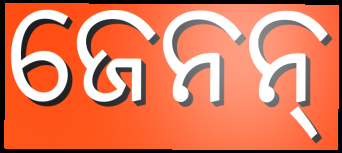
ଜେନନ୍